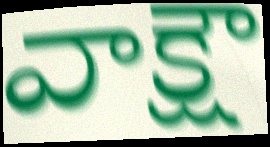
వాక్షౌ